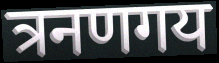
त्रनणगय